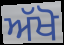
ਅੱਖੋ